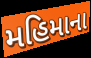
મહિમાના